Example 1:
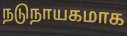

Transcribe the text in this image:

நடுநாயகமாக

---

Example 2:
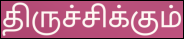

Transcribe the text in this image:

திருச்சிக்கும்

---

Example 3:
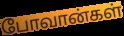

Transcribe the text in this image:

போவான்கள்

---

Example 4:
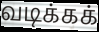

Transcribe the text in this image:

வடிக்கக்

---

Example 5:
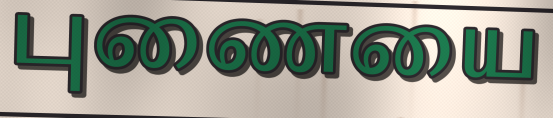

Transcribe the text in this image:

புணையை